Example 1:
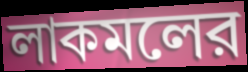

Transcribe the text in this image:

লাকমলের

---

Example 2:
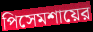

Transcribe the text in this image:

পিসেমশায়ের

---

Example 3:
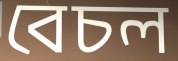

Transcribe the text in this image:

বেচল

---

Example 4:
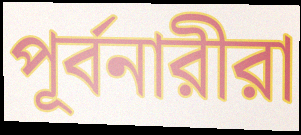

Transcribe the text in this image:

পূর্বনারীরা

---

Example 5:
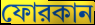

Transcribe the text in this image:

ফোরকান